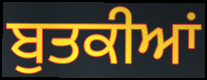
ਬੁਤਕੀਆਂ